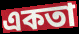
একতা